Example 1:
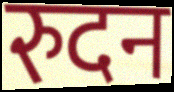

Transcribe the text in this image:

रुदन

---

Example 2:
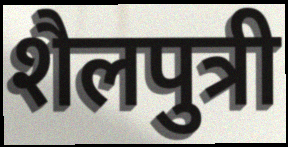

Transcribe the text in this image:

शैलपुत्री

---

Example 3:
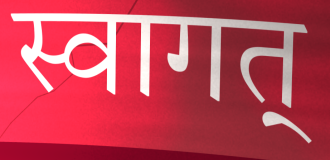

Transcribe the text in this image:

स्वागत्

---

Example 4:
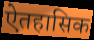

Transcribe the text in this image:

ऐतहासिक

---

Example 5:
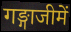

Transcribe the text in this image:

गङ्गाजीमें